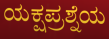
ಯಕ್ಷಪ್ರಶ್ನೆಯ